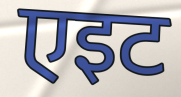
एइट